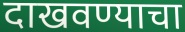
दाखवण्याचा